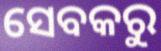
ସେବକରୁ